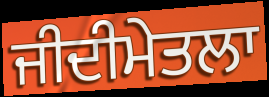
ਜੀਦੀਮੇਤਲਾ